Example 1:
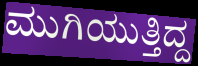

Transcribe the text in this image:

ಮುಗಿಯುತ್ತಿದ್ದ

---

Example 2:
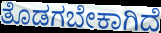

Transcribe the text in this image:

ತೊಡಗಬೇಕಾಗಿದೆ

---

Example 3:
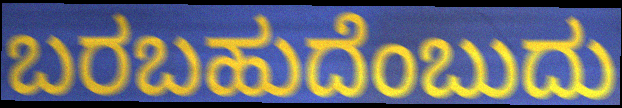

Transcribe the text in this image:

ಬರಬಹುದೆಂಬುದು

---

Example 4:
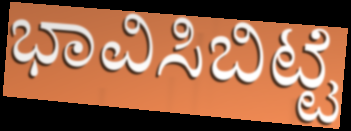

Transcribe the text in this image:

ಭಾವಿಸಿಬಿಟ್ಟೆ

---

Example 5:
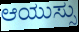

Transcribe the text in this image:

ಆಯುಸ್ಸು